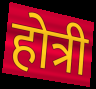
होत्री